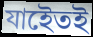
যাইেতই